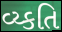
વ્ય્કતિ